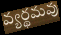
వ్యర్థమవు